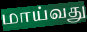
மாய்வது